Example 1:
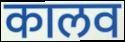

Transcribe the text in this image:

कालव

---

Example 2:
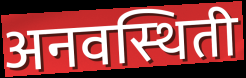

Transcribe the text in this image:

अनवस्थिती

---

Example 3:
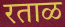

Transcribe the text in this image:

रताळ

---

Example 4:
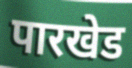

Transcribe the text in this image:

पारखेड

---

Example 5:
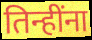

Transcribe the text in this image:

तिन्हींना